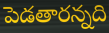
పెడతారన్నది